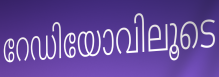
റേഡിയോവിലൂടെ